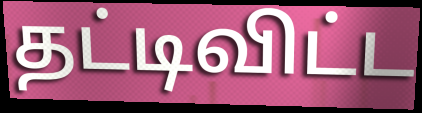
தட்டிவிட்ட